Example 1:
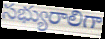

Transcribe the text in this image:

సభ్యురాలిగా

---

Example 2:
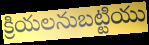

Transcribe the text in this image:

క్రియలనుబట్టియు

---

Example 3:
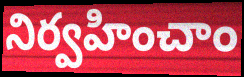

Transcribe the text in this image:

నిర్వహించాం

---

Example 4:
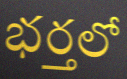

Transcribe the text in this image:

భర్తలో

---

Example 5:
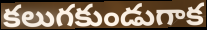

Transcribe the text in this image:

కలుగకుండుగాక